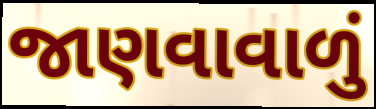
જાણવાવાળું